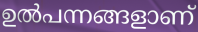
ഉൽപന്നങ്ങളാണ്